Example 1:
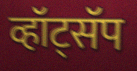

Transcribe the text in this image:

व्हॉट्सॅप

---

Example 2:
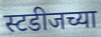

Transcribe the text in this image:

स्टडीजच्या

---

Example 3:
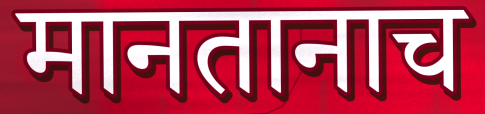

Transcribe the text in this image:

मानतानाच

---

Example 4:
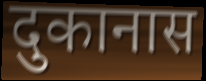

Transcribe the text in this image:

दुकानास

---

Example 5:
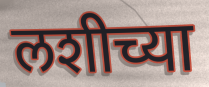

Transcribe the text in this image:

लशीच्या